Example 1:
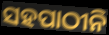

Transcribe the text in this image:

ସହପାଠୀନି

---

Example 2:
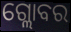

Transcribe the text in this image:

ଗ୍ଲୋବର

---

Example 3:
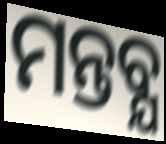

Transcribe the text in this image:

ମନ୍ତବ୍ଯ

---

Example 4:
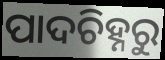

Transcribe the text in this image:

ପାଦଚିହ୍ନରୁ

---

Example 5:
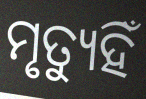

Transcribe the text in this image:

ମୃତ୍ୟୁହିଁ